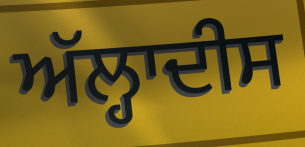
ਅੱਲ੍ਹਾਦੀਸ